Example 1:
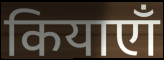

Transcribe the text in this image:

कियाएाँ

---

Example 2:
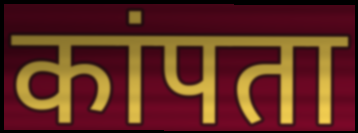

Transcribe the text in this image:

कांपता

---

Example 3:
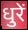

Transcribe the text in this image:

धुरें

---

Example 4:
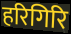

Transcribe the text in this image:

हरिगिरि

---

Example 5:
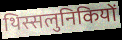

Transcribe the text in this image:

थिस्सलुनिकियों